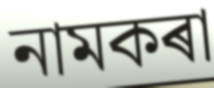
নামকৰা